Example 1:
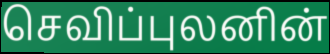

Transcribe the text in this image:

செவிப்புலனின்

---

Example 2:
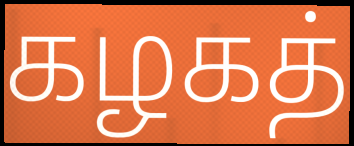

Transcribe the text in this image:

கழகத்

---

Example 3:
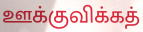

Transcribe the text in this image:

ஊக்குவிக்கத்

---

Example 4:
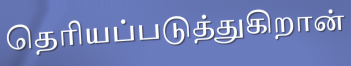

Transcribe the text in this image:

தெரியப்படுத்துகிறான்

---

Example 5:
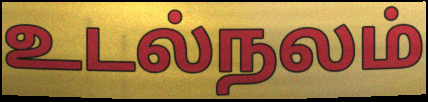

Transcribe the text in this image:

உடல்நலம்